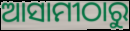
ଆସାମୀଠାରୁ